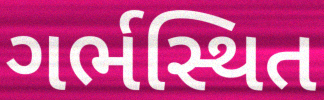
ગર્ભસ્થિત